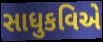
સાધુકવિએ